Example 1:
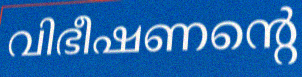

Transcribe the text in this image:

വിഭീഷണന്റെ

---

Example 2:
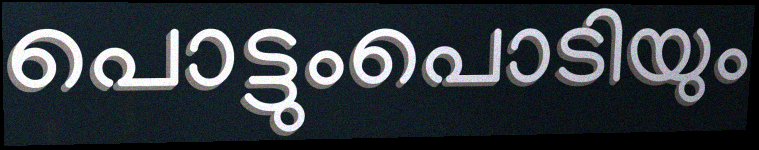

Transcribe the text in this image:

പൊട്ടുംപൊടിയും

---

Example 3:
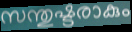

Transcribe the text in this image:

സന്തുഷ്ടരാകും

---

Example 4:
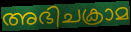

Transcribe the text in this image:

അഭിചക്രാമ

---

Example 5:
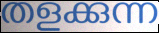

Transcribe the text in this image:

തളക്കുന്ന